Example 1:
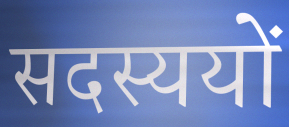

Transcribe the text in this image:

सदस्ययों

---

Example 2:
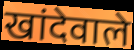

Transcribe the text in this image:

खांदेवाले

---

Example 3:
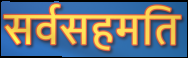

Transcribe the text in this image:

सर्वसहमति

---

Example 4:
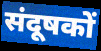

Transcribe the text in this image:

संदूषकों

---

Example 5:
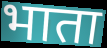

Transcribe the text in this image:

भाता